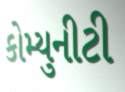
કોમ્યુનીટી